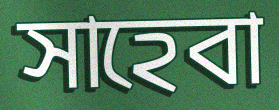
সাহেবা